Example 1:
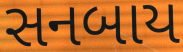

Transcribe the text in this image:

સનબાય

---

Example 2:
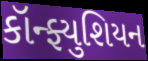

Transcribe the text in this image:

કૉન્ફ્યુશિયન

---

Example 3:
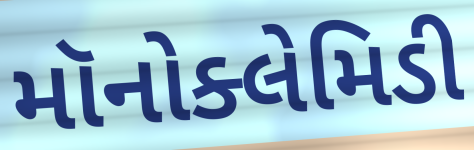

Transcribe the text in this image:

મૉનોક્લેમિડી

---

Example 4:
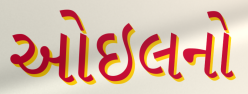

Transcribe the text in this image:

ઓઇલનો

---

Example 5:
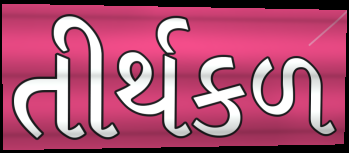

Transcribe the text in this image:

તીર્થકળ